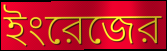
ইংরেজের